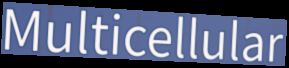
Multicellular